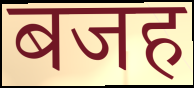
बजह